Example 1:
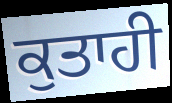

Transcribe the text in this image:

ਕੁਤਾਹੀ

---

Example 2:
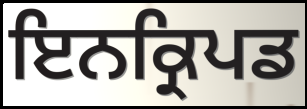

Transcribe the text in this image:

ਇਨਕ੍ਰਿਪਡ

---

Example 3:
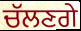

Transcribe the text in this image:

ਚੱਲਣਗੇ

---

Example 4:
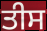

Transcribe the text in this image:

ਤੀਸ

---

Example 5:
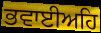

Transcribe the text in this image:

ਭਵਾਈਅਹਿ